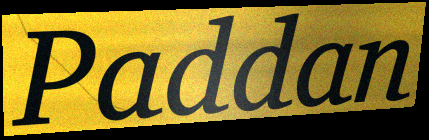
Paddan